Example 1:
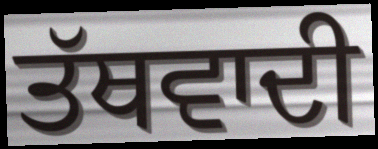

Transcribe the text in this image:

ਤੱਥਵਾਦੀ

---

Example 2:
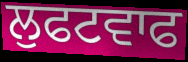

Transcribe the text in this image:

ਲੁਫਟਵਾਫ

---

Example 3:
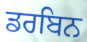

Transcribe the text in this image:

ਡਰਬਿਨ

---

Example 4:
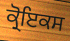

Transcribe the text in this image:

ਕ੍ਰੋਇਕਸ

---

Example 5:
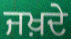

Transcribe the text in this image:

ਜਖ਼ਦੇ